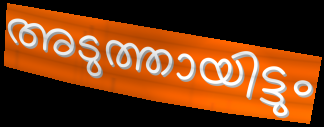
അടുത്തായിട്ടും